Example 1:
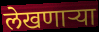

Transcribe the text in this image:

लेखणाऱ्या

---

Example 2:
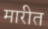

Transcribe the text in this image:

मारीत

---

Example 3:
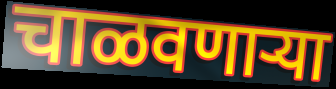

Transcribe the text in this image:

चाळवणाऱ्या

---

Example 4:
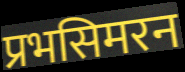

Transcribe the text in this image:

प्रभसिमरन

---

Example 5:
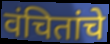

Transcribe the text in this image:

वंचितांचे